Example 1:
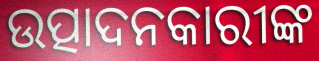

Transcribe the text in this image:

ଉତ୍ପାଦନକାରୀଙ୍କ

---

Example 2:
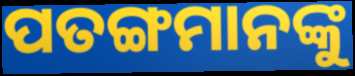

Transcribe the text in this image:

ପତଙ୍ଗମାନଙ୍କୁ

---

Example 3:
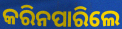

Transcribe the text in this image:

କରିନପାରିଲେ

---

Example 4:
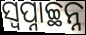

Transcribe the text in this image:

ସ୍ଵପ୍ନାଚ୍ଛନ୍ନ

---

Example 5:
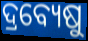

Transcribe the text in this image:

ଦ୍ରବ୍ୟେଷୁ